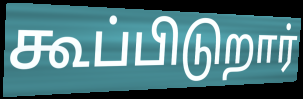
கூப்பிடுறார்